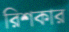
রিশকার